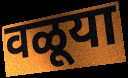
वळूया